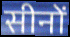
सीनों